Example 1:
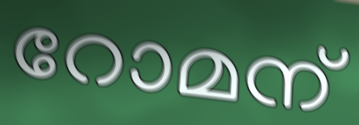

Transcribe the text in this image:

റോമന്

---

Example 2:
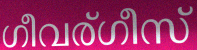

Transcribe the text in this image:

ഗീവര്ഗീസ്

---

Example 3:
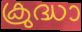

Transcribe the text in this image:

ക്രുദ്ധാ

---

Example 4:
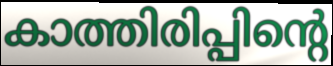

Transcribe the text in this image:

കാത്തിരിപ്പിന്റെ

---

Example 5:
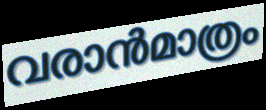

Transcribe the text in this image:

വരാൻമാത്രം